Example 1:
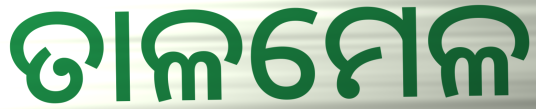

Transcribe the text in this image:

ତାଳମେଳ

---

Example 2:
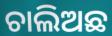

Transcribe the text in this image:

ଚାଲିଅଛ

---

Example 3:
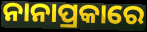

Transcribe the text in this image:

ନାନାପ୍ରକାରେ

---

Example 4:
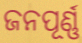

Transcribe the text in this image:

ଜନପୂର୍ଣ୍ଣ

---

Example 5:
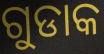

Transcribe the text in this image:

ଗୁଡାକ